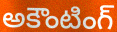
అకౌంటింగ్